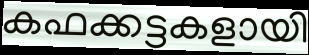
കഫക്കട്ടകളായി